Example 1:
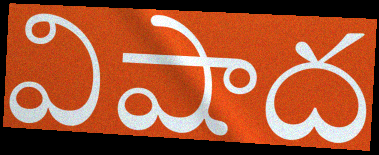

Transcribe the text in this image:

విషాద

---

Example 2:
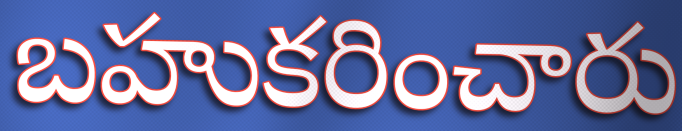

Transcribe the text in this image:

బహుకరించారు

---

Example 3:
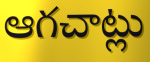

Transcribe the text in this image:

ఆగచాట్లు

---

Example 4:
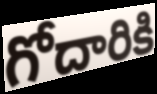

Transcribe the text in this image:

గోదారికి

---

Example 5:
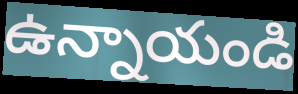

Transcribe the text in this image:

ఉన్నాయండి